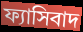
ফ্যাসিবাদ